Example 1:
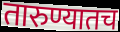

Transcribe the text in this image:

तारुण्यातच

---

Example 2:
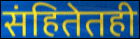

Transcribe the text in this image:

संहितेतही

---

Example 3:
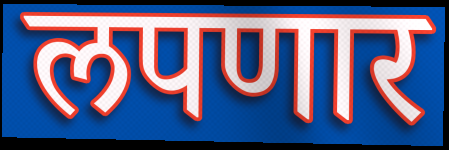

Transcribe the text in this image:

लपणार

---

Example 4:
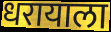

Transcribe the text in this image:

धरायाला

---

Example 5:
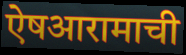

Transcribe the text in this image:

ऐषआरामाची